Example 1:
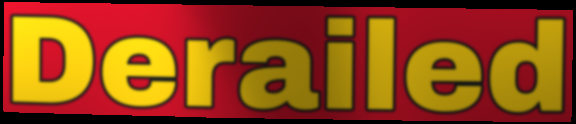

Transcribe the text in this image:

Derailed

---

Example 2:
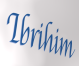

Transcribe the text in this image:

Ibrihim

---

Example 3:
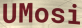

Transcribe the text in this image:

UMosi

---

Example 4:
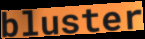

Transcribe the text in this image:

bluster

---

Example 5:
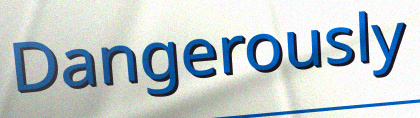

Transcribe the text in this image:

Dangerously